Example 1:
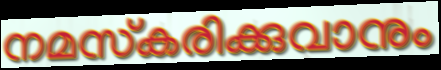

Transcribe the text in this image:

നമസ്‌കരിക്കുവാനും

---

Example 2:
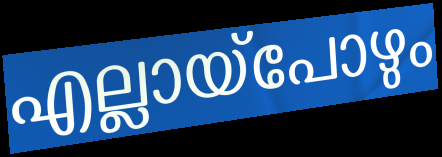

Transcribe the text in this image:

എല്ലായ്പോഴും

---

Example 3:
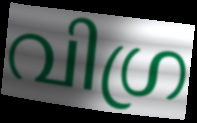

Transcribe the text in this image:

വിഗ്ര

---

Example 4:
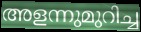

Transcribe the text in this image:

അളന്നുമുറിച്ച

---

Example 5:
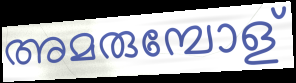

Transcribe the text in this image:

അമരുമ്പോള്